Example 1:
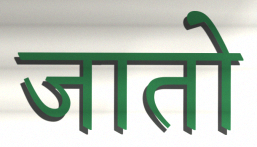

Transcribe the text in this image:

जातो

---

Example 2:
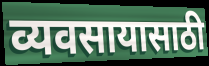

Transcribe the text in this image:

व्यवसायासाठी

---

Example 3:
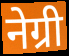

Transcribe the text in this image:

नेग्री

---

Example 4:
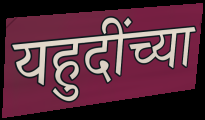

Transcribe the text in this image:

यहुदींच्या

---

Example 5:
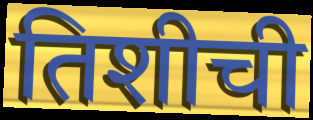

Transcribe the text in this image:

तिशीची